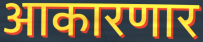
आकारणार